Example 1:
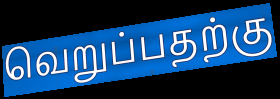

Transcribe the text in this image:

வெறுப்பதற்கு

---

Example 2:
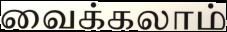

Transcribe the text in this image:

வைக்கலாம்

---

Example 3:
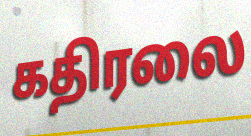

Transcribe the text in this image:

கதிரலை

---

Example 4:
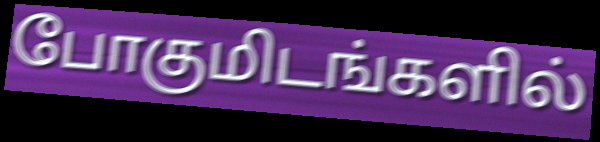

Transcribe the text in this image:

போகுமிடங்களில்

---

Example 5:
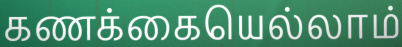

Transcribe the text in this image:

கணக்கையெல்லாம்